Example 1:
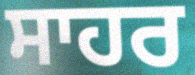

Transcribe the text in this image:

ਸਾਹਰ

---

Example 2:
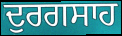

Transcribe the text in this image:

ਦੁਰਗਸਾਹ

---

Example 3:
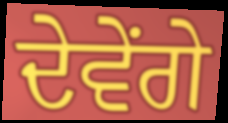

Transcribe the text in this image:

ਦੇਵੇਂਗੇ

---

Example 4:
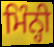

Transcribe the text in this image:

ਮਿੰਨ੍ਹੀ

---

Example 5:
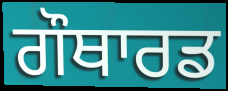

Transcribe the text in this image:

ਗੌਥਾਰਡ